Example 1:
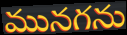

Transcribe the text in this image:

మునగను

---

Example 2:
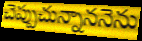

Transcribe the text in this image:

చెప్పుచున్నాననెను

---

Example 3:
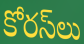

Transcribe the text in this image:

కోరస్‌లు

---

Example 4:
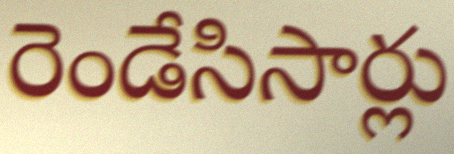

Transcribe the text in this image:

రెండేసిసార్లు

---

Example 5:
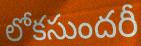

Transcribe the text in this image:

లోకసుందరీ